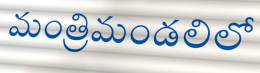
మంత్రిమండలిలో